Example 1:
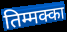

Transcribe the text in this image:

तिम्मक्का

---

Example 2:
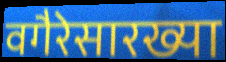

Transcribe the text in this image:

वगैरेसारख्या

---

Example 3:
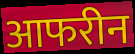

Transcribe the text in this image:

आफरीन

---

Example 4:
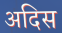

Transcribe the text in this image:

अदिस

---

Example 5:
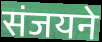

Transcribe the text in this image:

संजयने